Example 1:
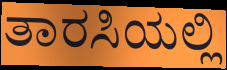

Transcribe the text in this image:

ತಾರಸಿಯಲ್ಲಿ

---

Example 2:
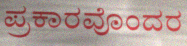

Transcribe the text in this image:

ಪ್ರಕಾರವೊಂದರ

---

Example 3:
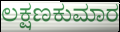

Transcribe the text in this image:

ಲಕ್ಷಣಕುಮಾರ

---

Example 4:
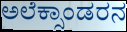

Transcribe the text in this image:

ಅಲೆಕ್ಸಾಂಡರನ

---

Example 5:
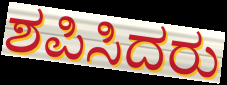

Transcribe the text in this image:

ಶಪಿಸಿದರು